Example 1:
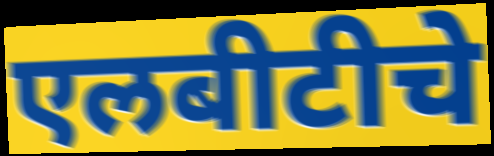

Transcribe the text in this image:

एलबीटीचे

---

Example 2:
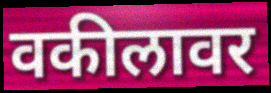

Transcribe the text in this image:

वकीलावर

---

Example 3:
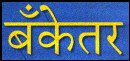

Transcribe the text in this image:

बँकेतर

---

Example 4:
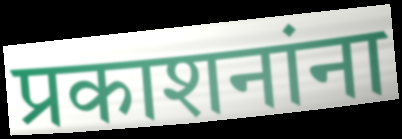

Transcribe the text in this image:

प्रकाशनांना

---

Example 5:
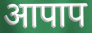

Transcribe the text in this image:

आपाप